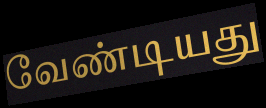
வேண்டியது